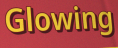
Glowing